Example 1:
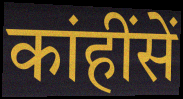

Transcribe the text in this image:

कांहींसें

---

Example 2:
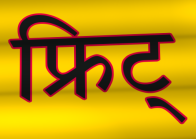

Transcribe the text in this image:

फ्रिट्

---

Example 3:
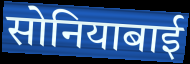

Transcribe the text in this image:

सोनियाबाई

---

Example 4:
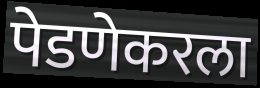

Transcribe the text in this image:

पेडणेकरला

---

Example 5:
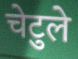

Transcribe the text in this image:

चेटुले